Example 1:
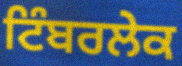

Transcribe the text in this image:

ਟਿੰਬਰਲੇਕ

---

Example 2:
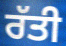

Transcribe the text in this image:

ਰੱਤੀ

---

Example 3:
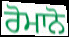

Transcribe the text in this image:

ਰੋਮਾਨੋ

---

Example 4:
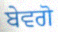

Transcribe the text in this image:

ਬੇਵਗੋ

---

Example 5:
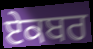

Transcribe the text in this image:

ਏਕਬਰ